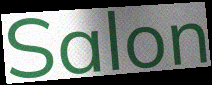
Salon